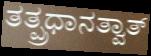
ತತ್ಪ್ರಧಾನತ್ವಾತ್